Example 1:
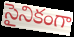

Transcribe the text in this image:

సైనికంగా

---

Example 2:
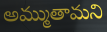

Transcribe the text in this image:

అమ్ముతామని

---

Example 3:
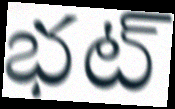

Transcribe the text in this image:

భట్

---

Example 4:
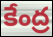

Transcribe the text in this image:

కేంద్ర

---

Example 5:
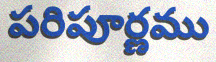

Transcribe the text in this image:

పరిపూర్ణము